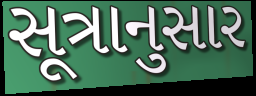
સૂત્રાનુસાર